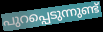
പുറപ്പെടുന്നുണ്ട്